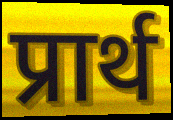
प्रार्थ